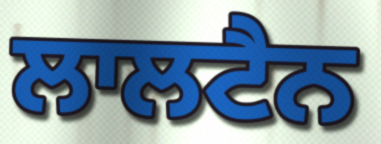
ਲਾਲਟੈਨ